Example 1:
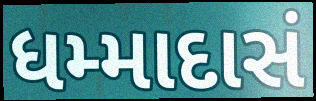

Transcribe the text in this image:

ધમ્માદાસં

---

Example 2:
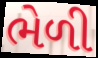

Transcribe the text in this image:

ભેળી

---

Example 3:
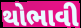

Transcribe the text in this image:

થોભાવી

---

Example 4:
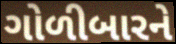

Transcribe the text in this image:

ગોળીબારને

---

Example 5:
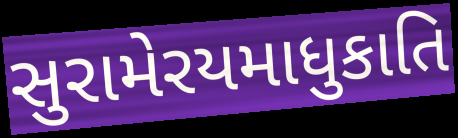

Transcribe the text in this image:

સુરામેરયમાધુકાતિ